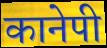
कानेपी